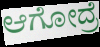
ಆಗೋದ್ರೆ